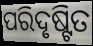
ପରିଦୃଷ୍ଟିତ